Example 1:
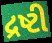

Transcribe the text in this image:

દ્રષ્ટી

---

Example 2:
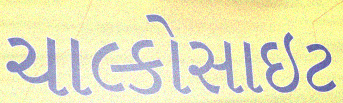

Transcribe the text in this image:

ચાલ્કોસાઇટ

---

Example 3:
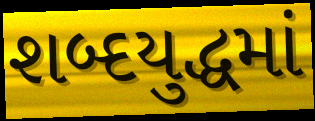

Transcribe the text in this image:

શબ્દયુદ્ધમાં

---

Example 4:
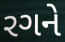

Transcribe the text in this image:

રગને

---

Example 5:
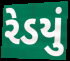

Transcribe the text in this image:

રેડયું